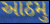
આઠમુ